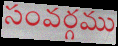
సంవర్గము